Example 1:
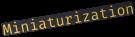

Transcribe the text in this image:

Miniaturization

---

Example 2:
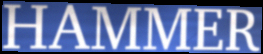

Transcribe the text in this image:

HAMMER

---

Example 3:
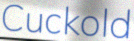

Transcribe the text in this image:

Cuckold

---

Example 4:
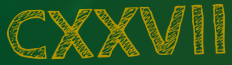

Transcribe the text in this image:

CXXVII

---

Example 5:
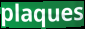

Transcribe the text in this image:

plaques